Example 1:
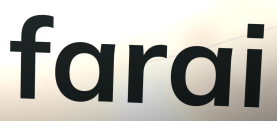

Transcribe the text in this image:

farai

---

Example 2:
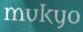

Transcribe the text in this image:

mukyo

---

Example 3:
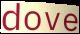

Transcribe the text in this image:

dove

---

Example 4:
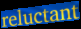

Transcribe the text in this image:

reluctant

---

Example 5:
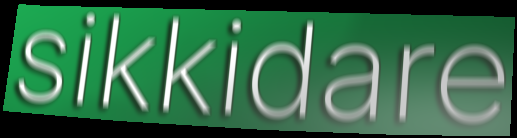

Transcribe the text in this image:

sikkidare